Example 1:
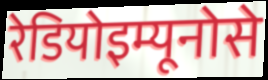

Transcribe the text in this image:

रेडियोइम्यूनोसे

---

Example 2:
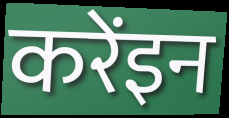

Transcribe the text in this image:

करेंइन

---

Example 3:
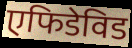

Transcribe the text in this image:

एफिडेविड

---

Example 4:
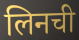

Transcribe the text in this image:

लिनची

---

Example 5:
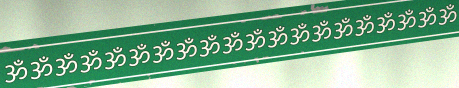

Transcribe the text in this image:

ॐॐॐॐॐॐॐॐॐॐॐॐॐॐॐॐॐॐॐॐ